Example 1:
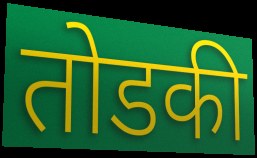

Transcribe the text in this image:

तोडकी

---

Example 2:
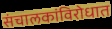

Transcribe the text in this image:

संचालकांविरोधात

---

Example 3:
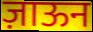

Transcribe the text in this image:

ज़ाऊन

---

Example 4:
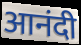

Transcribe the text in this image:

आनंदी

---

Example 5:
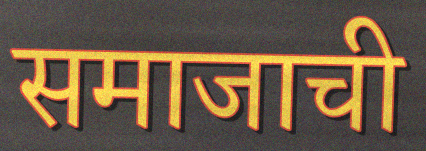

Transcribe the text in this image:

समाजाची